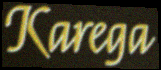
Karega